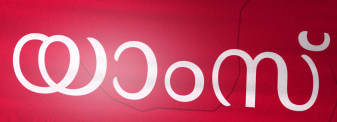
യാംസ്